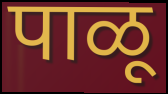
पाळू